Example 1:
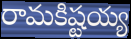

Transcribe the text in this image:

రామకిష్టయ్య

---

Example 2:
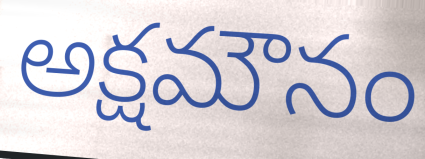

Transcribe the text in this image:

అక్షమౌనం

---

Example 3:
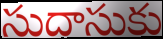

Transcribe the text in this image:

సుదాసుకు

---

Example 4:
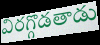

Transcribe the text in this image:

విరగ్గొడతాడు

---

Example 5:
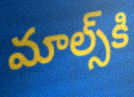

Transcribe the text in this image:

మాల్స్‌కి